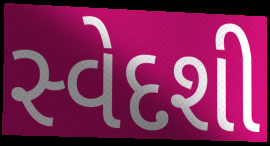
સ્વેદશી